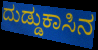
ದುಡ್ಡುಕಾಸಿನ